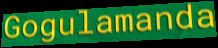
Gogulamanda